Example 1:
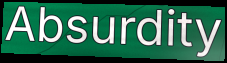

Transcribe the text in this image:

Absurdity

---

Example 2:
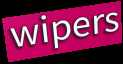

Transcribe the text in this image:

wipers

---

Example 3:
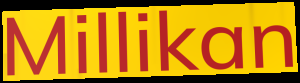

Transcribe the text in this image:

Millikan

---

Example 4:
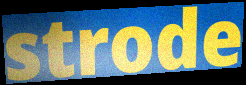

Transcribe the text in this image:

strode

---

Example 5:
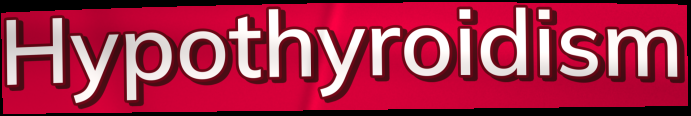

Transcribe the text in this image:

Hypothyroidism